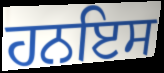
ਹਨਇਸ